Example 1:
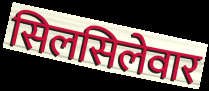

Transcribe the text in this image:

सिलसिलेवार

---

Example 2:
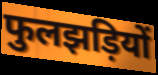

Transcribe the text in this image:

फुलझड़ियों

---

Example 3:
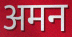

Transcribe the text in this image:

अमन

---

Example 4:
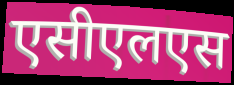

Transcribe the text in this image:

एसीएलएस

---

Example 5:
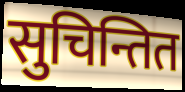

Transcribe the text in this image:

सुचिन्तित